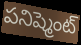
పనిష్మెంట్